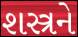
શસ્ત્રને